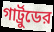
গার্ট্রুডের